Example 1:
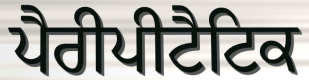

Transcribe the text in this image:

ਪੈਰੀਪੀਟੈਟਿਕ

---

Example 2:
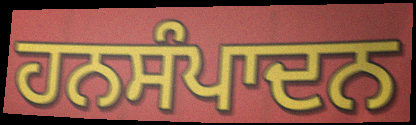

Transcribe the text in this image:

ਹਨਸੰਪਾਦਨ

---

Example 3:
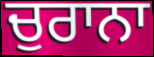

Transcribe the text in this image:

ਚੁਰਾਨਾ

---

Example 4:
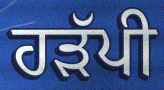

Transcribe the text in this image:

ਹੜੱਪੀ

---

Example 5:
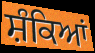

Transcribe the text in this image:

ਸ਼ੰਕਿਆਂ